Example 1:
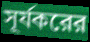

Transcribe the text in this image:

সূর্যকরের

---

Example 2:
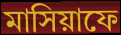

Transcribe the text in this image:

মাসিয়াফে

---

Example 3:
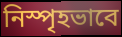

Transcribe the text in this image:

নিস্পৃহভাবে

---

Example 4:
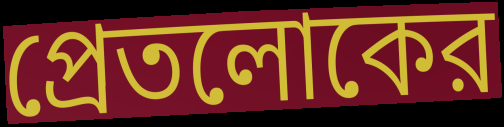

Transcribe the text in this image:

প্রেতলোকের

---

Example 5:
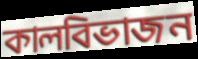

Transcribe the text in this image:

কালবিভাজন